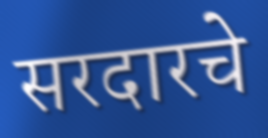
सरदारचे